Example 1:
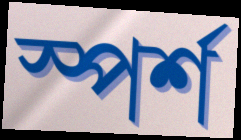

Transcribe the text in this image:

স্পৰ্শ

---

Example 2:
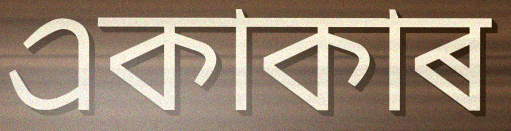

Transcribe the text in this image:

একাকাৰ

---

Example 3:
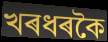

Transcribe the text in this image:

খৰধৰকৈ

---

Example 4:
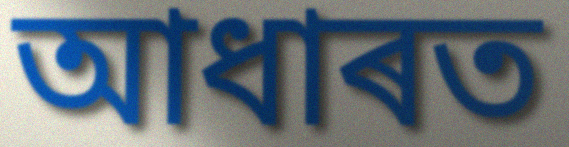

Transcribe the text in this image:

আধাৰত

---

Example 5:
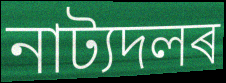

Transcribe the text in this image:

নাট্যদলৰ